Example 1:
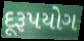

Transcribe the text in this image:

દૂરૂપયોગ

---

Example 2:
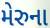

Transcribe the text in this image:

મેરુના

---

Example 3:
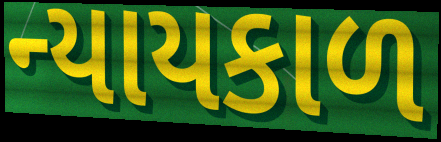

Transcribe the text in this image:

ન્યાયકાળ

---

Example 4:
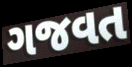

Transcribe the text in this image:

ગજવત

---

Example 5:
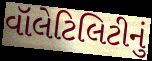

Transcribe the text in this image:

વૉલેટિલિટીનું